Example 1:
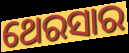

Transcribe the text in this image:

ଥେରସାର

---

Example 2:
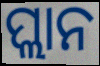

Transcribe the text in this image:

ପ୍ଲାନ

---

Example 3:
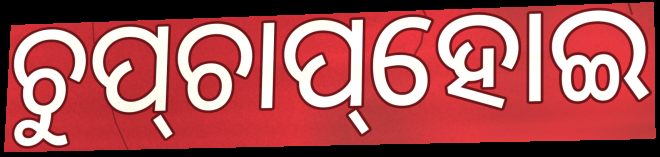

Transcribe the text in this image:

ଚୁପ୍‌ଚାପ୍‌ହୋଇ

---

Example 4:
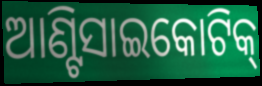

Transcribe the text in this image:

ଆଣ୍ଟିସାଇକୋଟିକ୍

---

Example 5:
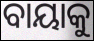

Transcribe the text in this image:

ବାୟାକୁ